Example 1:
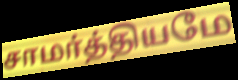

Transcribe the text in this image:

சாமர்த்தியமே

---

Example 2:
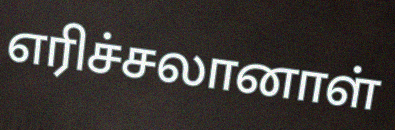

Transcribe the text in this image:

எரிச்சலானாள்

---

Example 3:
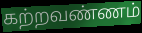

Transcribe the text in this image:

கற்றவண்ணம்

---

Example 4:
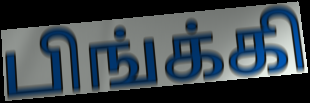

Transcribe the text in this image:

பிங்க்கி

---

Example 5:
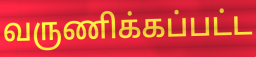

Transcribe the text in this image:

வருணிக்கப்பட்ட